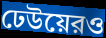
ঢেউয়েরও